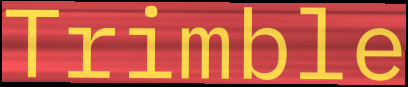
Trimble